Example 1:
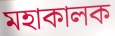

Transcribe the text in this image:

মহাকালক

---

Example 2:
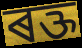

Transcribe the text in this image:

ৰক্ত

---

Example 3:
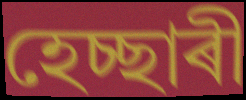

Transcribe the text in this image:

হেচ্ছাৰী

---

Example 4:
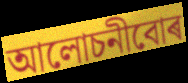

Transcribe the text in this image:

আলোচনীবোৰ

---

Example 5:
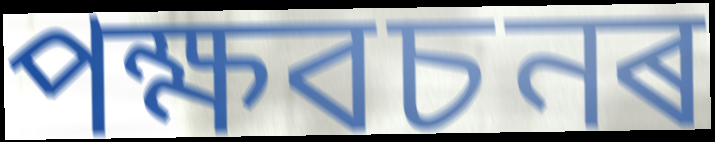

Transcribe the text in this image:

পক্ষবচনৰ